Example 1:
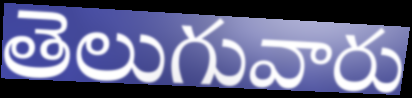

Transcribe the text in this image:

తెలుగువారు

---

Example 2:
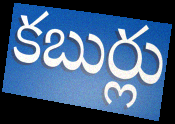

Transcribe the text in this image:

కబుర్లు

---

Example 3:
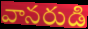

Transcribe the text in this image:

వానరుడి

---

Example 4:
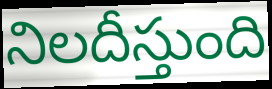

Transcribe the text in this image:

నిలదీస్తుంది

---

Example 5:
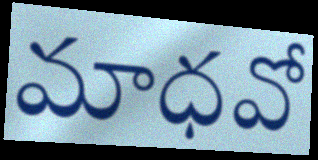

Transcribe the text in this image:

మాధవో